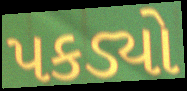
પકડ્યો